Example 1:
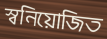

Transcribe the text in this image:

স্বনিয়োজিত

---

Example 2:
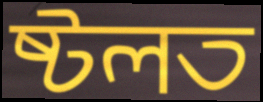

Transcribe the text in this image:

ষ্টলত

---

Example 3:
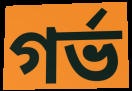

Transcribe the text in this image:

গৰ্ভ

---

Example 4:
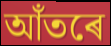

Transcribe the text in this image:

আঁতৰে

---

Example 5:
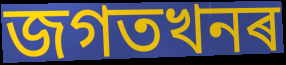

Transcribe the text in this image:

জগতখনৰ